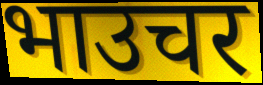
भाउचर